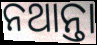
ନଥାନ୍ତା